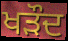
ਖੜੌਦ